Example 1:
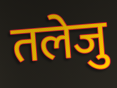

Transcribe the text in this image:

तलेजु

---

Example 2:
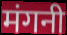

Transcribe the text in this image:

मंगनी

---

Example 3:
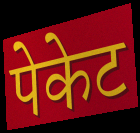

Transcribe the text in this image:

पेकेट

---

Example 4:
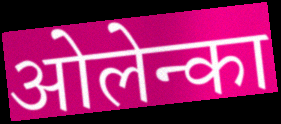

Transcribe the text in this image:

ओलेन्का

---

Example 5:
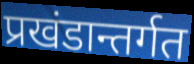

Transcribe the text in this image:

प्रखंडान्तर्गत